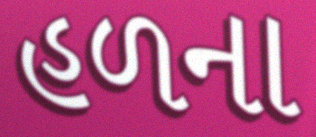
હળના